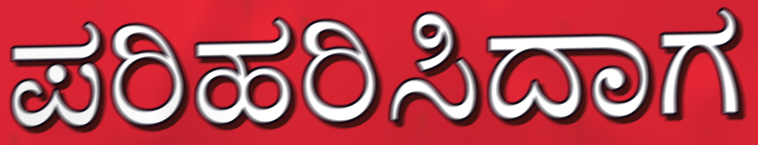
ಪರಿಹರಿಸಿದಾಗ